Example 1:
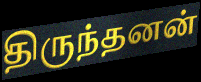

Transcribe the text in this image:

திருந்தனன்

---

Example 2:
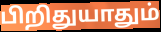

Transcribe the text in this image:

பிறிதுயாதும்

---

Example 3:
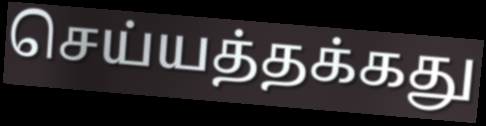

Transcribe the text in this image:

செய்யத்தக்கது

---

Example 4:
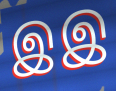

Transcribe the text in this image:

இஇ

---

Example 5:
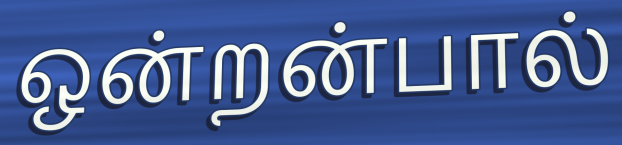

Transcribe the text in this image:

ஒன்றன்பால்